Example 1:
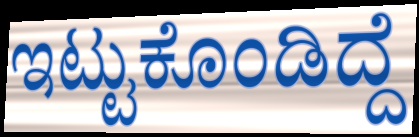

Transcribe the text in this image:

ಇಟ್ಟುಕೊಂಡಿದ್ದೆ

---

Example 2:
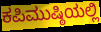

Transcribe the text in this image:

ಕಪಿಮುಷ್ಠಿಯಲ್ಲಿ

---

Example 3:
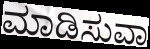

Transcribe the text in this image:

ಮಾಡಿಸುವಾ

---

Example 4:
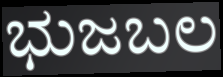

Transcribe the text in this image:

ಭುಜಬಲ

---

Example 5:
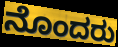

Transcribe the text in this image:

ನೊಂದರು